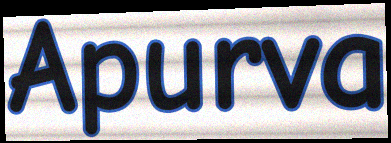
Apurva